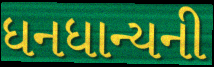
ધનધાન્યની